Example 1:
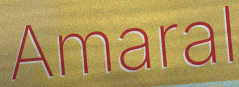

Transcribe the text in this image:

Amaral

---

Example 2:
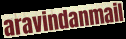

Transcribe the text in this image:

aravindanmail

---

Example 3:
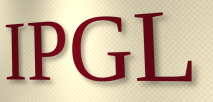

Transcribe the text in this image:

IPGL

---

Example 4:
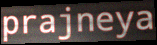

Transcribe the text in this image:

prajneya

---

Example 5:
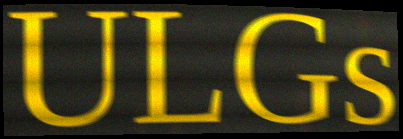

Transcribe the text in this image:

ULGs